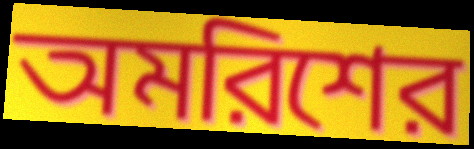
অমরিশের